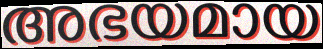
അഭയമായ